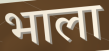
भाला